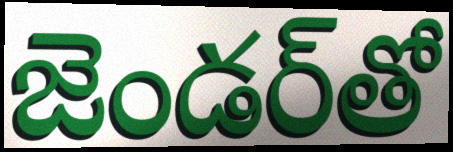
జెండర్‌తో